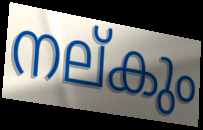
നല്കും